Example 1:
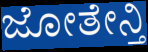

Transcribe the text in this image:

ಜೋತೇನ್ತಿ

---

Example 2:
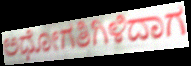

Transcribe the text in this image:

ಅಧೋಗತಿಗಿಳಿದಾಗ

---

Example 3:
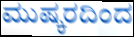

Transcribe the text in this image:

ಮುಷ್ಕರದಿಂದ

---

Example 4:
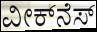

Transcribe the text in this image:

ವೀಕ್‌ನೆಸ್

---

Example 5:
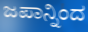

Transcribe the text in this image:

ಜಪಾನ್ನಿಂದ